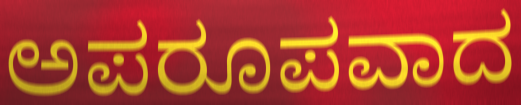
ಅಪರೂಪವಾದ